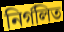
নির্গলিত